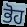
ਭੋਹ